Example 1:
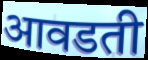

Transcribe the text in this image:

आवडती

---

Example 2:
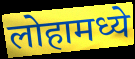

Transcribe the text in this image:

लोहामध्ये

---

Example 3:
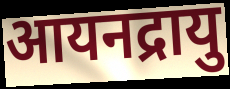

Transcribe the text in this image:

आयनद्रायु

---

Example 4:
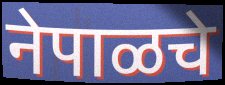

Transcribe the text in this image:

नेपाळचे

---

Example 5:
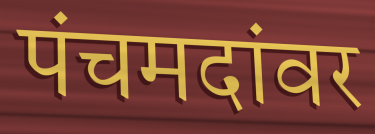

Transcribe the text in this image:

पंचमदांवर